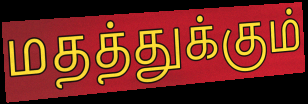
மதத்துக்கும்